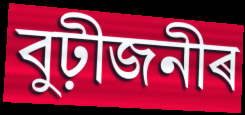
বুঢ়ীজনীৰ